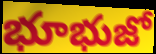
భూభుజో